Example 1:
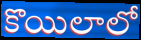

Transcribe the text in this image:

కొయిలాలో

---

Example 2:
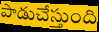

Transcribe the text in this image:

పాడుచేస్తుంది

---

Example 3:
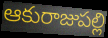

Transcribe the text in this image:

ఆకురాజుపల్లి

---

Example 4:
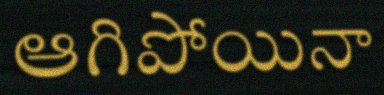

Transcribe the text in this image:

ఆగిపోయినా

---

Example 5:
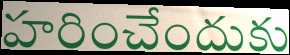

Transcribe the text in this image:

హరించేందుకు